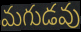
మగుడవు